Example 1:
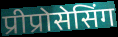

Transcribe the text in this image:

प्रीप्रोसेसिंग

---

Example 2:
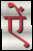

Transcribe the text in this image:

ऐं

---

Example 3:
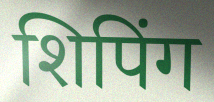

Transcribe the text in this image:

शिपिंग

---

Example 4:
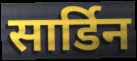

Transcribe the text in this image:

सार्डिन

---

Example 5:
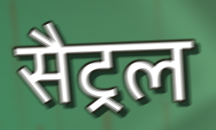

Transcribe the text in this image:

सैट्रल